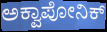
ಅಕ್ವಾಪೋನಿಕ್